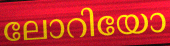
ലോറിയോ